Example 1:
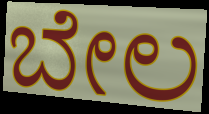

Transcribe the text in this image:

ಬೇಲ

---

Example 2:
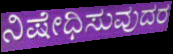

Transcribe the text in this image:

ನಿಷೇಧಿಸುವುದರ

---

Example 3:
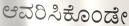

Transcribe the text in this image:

ಆವರಿಸಿಕೊಂಡೇ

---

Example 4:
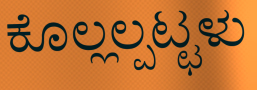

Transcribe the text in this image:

ಕೊಲ್ಲಲ್ಪಟ್ಟಳು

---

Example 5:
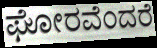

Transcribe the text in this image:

ಘೋರವೆಂದರೆ